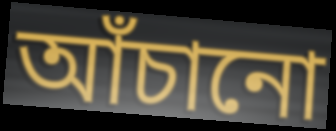
আঁচানো